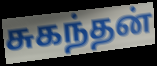
சுகந்தன்